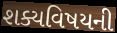
શક્યવિષયની